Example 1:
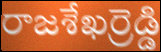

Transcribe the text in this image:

రాజశేఖర్రెడ్డి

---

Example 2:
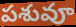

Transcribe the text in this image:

పశువూ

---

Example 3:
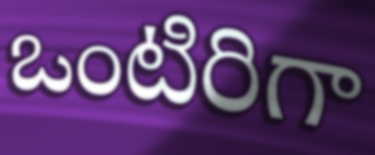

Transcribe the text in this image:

ఒంటిరిగా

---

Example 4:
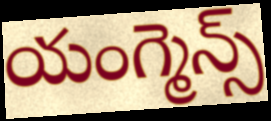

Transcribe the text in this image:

యంగ్మెన్స్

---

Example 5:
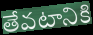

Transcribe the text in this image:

తేవటానికి